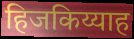
हिजकिय्याह